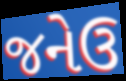
જનેઉ